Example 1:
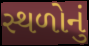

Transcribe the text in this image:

સ્થળોનું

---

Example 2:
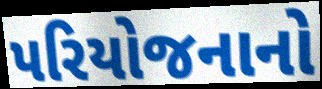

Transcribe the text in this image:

પરિયોજનાનો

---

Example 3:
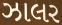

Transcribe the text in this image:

ઝાલર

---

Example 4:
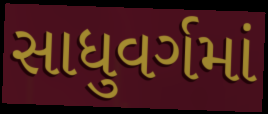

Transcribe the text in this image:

સાધુવર્ગમાં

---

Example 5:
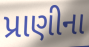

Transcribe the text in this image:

પ્રાણીના